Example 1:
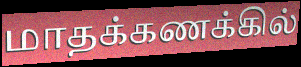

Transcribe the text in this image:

மாதக்கணக்கில்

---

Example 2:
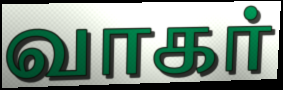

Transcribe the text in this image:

வாகர்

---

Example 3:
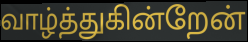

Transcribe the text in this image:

வாழ்த்துகின்றேன்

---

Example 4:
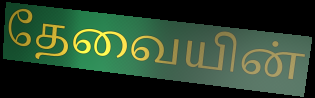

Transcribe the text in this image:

தேவையின்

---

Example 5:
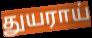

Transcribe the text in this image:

துயராய்